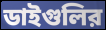
ডাইগুলির